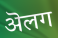
ऄलग